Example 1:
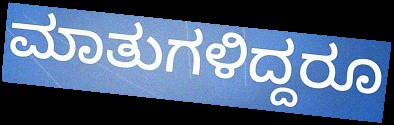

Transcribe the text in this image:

ಮಾತುಗಳಿದ್ದರೂ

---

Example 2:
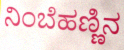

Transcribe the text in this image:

ನಿಂಬೆಹಣ್ಣಿನ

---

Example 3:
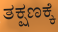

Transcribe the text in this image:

ತಕ್ಷಣಕ್ಕೆ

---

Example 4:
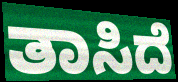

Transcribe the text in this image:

ತಾಸಿದೆ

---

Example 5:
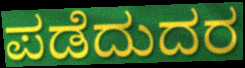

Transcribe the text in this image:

ಪಡೆದುದರ